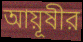
আয়ূষীর